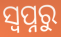
ସ୍ୱପ୍ନରୁ